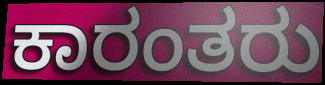
ಕಾರಂತರು